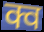
क्व